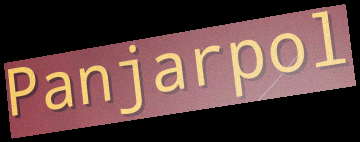
Panjarpol